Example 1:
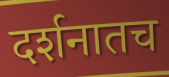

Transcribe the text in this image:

दर्शनातच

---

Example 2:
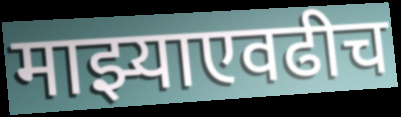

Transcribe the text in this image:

माझ्याएवढीच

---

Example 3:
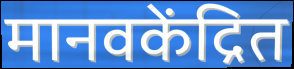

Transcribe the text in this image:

मानवकेंद्रित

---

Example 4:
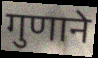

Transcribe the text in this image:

गुणाने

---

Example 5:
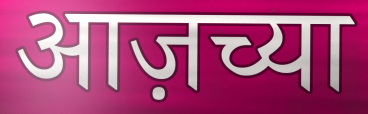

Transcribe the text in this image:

आज़च्या